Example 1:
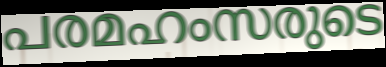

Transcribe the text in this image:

പരമഹംസരുടെ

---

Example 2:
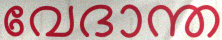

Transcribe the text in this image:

വേദാന്ത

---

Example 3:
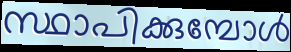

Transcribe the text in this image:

സ്ഥാപിക്കുമ്പോൾ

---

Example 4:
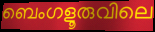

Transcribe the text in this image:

ബെംഗളൂരുവിലെ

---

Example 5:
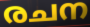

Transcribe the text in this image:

രചന